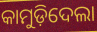
କାମୁଡ଼ିଦେଲା